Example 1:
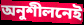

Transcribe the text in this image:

অনুশীলনেই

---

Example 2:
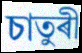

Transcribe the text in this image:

চাতুৰী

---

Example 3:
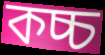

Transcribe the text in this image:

কচ্চ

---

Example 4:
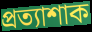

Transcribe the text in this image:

প্ৰত্যাশাক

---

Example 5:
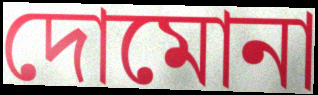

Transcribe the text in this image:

দোমোনা